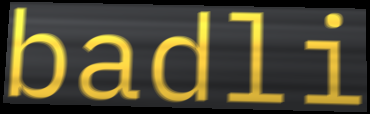
badli